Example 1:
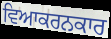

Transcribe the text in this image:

ਵਿਆਕਰਨਕਾਰ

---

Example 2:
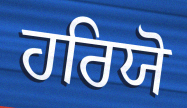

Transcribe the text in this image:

ਹਰਿਯੋ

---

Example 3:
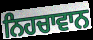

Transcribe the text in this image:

ਨਿਹਚਾਵਾਨ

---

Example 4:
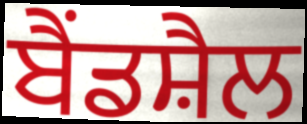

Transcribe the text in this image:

ਬੈਂਡਸ਼ੈਲ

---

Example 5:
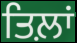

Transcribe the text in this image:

ਤਿਲ਼ਾਂ